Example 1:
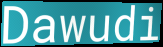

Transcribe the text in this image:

Dawudi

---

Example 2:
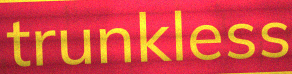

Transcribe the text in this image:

trunkless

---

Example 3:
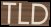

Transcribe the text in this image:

TLD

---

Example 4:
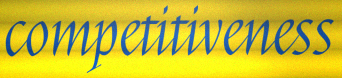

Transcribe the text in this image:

competitiveness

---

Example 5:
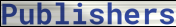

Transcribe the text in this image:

Publishers